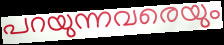
പറയുന്നവരെയും